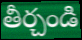
తీర్చండి